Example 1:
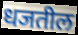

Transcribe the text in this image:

धजतील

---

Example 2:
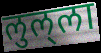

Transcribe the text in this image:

लुल्ला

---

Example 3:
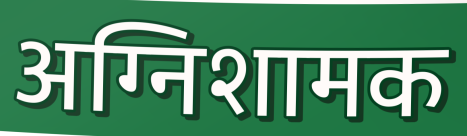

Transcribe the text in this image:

अग्निशामक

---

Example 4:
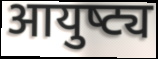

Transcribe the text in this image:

आयुष्ट्य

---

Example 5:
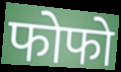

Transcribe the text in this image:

फोफो